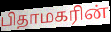
பிதாமகரின்